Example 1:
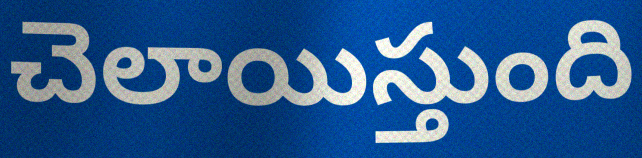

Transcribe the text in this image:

చెలాయిస్తుంది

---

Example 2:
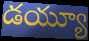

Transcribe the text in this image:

డయ్యూ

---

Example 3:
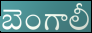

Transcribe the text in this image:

బెంగాలీ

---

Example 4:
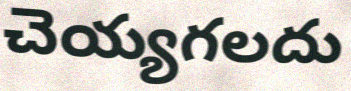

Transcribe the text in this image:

చెయ్యగలదు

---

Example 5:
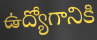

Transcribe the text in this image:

ఉద్యోగానికి